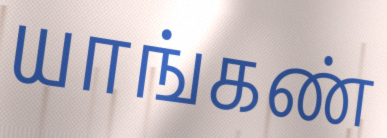
யாங்கண்